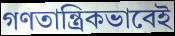
গণতান্ত্রিকভাবেই